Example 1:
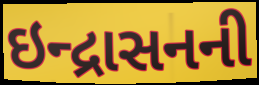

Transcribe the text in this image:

ઇન્દ્રાસનની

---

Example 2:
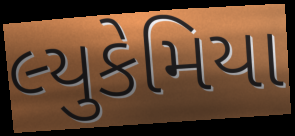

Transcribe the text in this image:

લ્યુકેમિયા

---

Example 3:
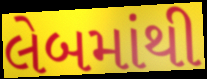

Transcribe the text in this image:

લેબમાંથી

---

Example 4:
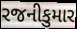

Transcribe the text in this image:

રજનીકુમાર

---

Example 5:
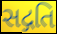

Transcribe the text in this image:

સદ્ગતિ